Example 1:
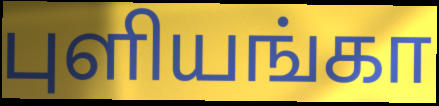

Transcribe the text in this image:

புளியங்கா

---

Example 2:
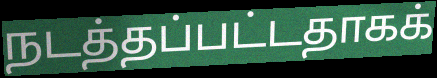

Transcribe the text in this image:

நடத்தப்பட்டதாகக்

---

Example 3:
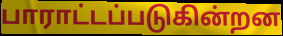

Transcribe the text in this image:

பாராட்டப்படுகின்றன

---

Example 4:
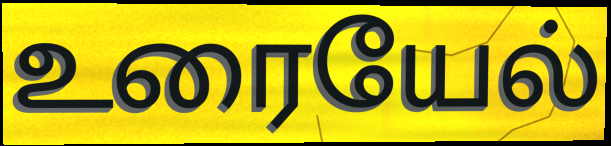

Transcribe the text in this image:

உரையேல்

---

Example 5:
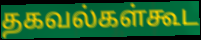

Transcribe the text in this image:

தகவல்கள்கூட